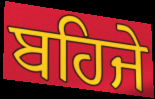
ਬਹਿਜੇ